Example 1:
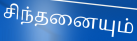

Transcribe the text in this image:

சிந்தனையும்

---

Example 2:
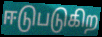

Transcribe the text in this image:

ஈடுபடுகிற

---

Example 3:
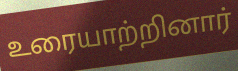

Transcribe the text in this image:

உரையாற்றினார்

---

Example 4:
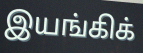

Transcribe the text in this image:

இயங்கிக்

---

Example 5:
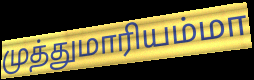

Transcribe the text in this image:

முத்துமாரியம்மா